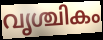
വൃശ്ചികം